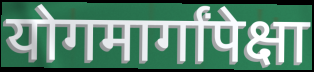
योगमार्गांपेक्षा